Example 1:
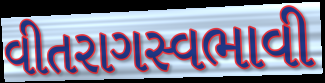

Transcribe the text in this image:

વીતરાગસ્વભાવી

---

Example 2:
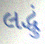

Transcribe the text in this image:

લદ્ધું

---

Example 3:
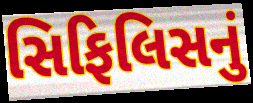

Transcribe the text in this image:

સિફિલિસનું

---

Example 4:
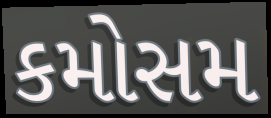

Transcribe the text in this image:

કમોસમ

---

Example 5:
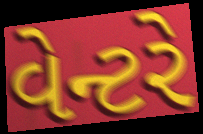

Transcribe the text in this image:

વેન્ટરે